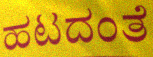
ಹಟದಂತೆ